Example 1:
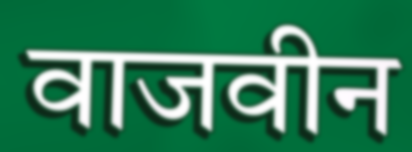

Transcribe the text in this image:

वाजवीन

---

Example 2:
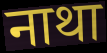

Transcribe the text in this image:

नाथा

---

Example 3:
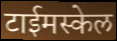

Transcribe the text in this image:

टाईमस्केल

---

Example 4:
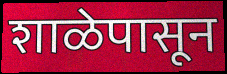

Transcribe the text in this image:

शाळेपासून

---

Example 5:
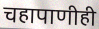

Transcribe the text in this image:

चहापाणीही